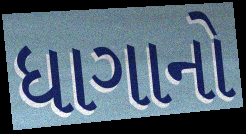
ધાગાનો